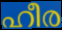
ഹീര